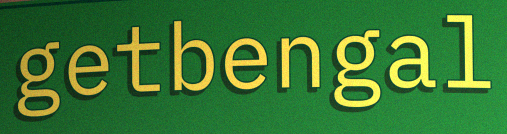
getbengal